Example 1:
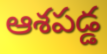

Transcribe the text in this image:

ఆశపడ్డ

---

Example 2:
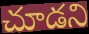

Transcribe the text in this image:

చూడని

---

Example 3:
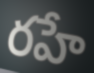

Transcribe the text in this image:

రహే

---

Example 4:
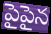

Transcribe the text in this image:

పైపైన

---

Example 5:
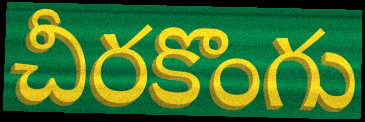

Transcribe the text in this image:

చీరకొంగు